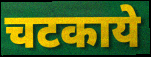
चटकाये